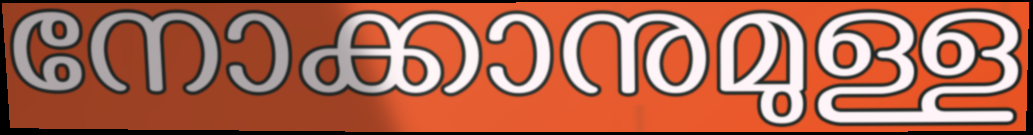
നോക്കാനുമുള്ള